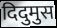
दिदुमुस